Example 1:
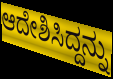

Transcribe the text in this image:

ಆದೇಶಿಸಿದ್ದನ್ನು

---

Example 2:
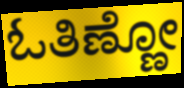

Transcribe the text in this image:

ಓತಿಣ್ಣೋ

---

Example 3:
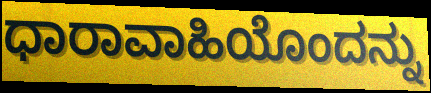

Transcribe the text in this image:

ಧಾರಾವಾಹಿಯೊಂದನ್ನು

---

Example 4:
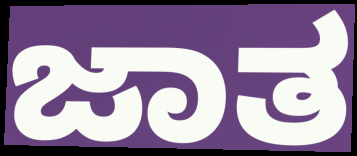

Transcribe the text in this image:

ಜಾತ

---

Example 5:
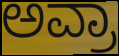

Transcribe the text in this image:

ಅವ್ರಾ